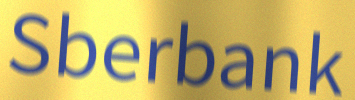
Sberbank